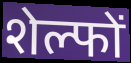
शेल्फों